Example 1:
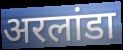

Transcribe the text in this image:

अरलांडा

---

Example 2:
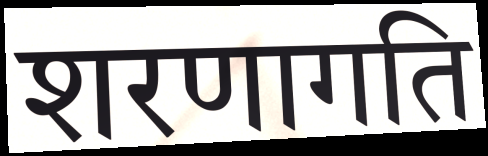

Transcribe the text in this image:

शरणागति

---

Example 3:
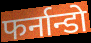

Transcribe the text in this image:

फर्नान्डो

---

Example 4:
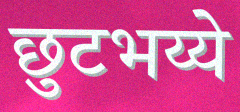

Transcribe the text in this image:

छुटभय्ये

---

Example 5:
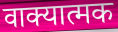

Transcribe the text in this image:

वाक्यात्मक